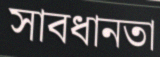
সাবধানতা